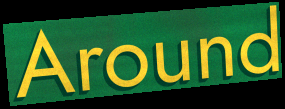
Around